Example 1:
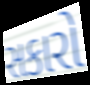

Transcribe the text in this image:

સકારો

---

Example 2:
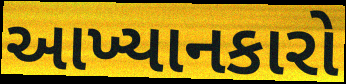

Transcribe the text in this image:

આખ્યાનકારો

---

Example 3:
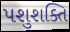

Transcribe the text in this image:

પશુશક્તિ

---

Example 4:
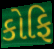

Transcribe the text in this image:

કોફિ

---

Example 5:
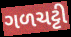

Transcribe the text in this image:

ગળચટ્ટી